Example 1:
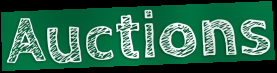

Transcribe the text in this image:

Auctions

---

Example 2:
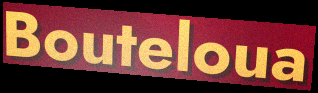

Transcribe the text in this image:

Bouteloua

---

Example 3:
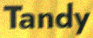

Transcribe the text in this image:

Tandy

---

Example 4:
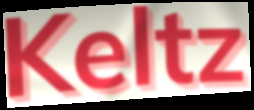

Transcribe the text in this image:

Keltz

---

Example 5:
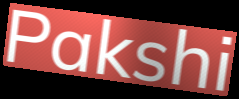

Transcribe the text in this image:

Pakshi